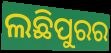
ଲଛିପୁରର